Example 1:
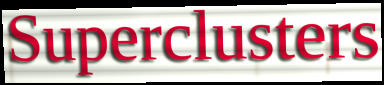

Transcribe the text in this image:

Superclusters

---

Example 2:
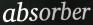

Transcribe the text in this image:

absorber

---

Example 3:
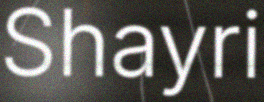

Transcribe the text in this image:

Shayri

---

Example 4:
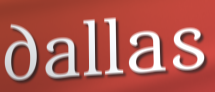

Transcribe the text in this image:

dallas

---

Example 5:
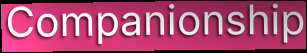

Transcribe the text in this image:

Companionship